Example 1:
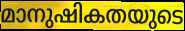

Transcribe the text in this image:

മാനുഷികതയുടെ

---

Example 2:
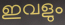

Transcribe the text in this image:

ഇവളും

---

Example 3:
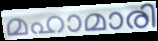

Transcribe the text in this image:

മഹാമാരി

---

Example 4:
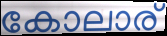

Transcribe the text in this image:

കോലാര്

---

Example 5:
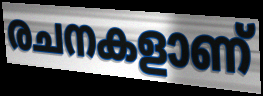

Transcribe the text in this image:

രചനകളാണ്